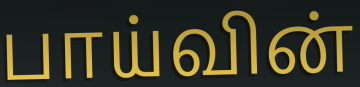
பாய்வின்